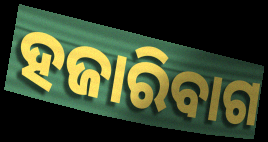
ହଜାରିବାଗ